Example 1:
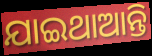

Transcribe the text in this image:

ଯାଇଥାଆନ୍ତି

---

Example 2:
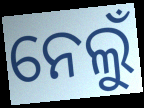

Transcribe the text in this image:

ନେଲୁଁ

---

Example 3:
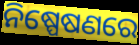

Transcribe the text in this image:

ନିଷ୍ପେଷଣରେ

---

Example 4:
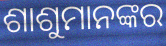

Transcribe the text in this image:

ଶାଶୁମାନଙ୍କର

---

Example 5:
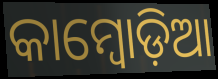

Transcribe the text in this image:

କାମ୍ବୋଡ଼ିଆ